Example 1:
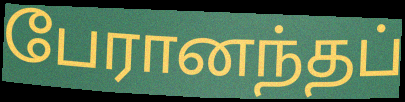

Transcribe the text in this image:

பேரானந்தப்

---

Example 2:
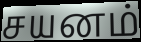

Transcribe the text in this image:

சயனம்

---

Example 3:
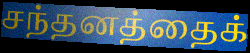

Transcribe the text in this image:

சந்தனத்தைக்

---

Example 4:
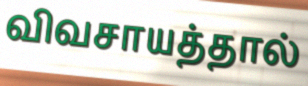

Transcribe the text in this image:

விவசாயத்தால்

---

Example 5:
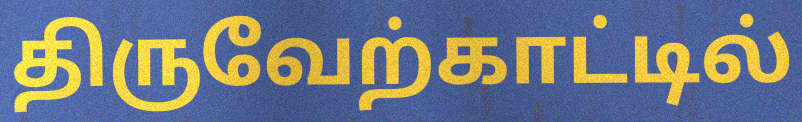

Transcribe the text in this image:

திருவேற்காட்டில்